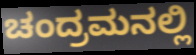
ಚಂದ್ರಮನಲ್ಲಿ